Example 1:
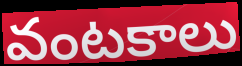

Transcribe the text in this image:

వంటకాలు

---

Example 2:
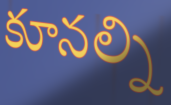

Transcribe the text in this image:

కూనల్ని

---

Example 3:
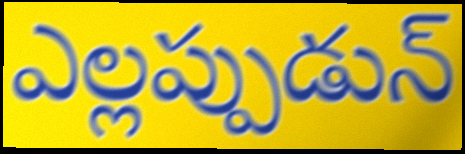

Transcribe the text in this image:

ఎల్లప్పుడున్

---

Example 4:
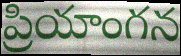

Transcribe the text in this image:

ప్రియాంగన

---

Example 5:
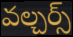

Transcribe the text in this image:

వల్చర్స్